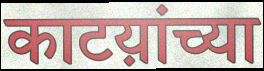
काटय़ांच्या